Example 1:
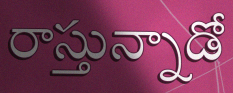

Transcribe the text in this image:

రాస్తున్నాడో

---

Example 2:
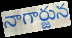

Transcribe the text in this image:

నాగార్జున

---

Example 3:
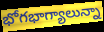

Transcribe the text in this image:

భోగభాగ్యాలున్నా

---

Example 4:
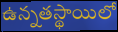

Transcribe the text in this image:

ఉన్నతస్థాయిలో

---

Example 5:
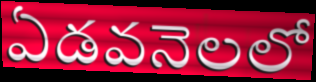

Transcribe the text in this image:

ఏడవనెలలో